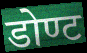
डोण्ट